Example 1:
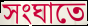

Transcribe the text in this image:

সংঘাতে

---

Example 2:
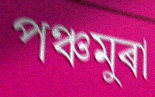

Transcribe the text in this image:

পঞ্চমুৰা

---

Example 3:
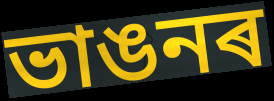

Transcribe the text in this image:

ভাঙনৰ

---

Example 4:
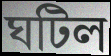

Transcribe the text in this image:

ঘটিল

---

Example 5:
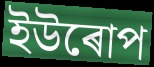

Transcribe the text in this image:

ইউৰোপ